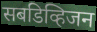
सबडिव्हिजन